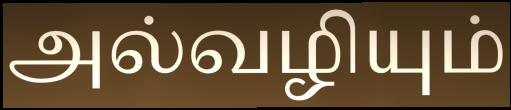
அல்வழியும்